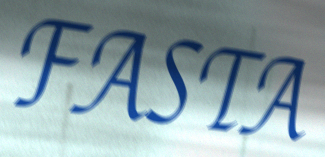
FASTA